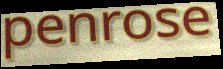
penrose